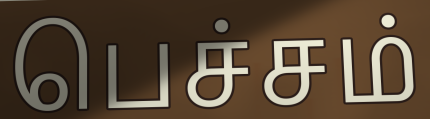
பெச்சம்